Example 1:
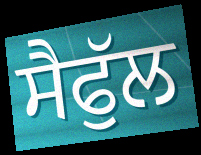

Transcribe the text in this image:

ਸੈਫੁੱਲ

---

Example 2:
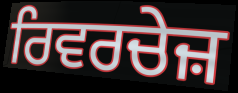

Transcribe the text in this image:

ਰਿਵਰਚੇਜ਼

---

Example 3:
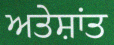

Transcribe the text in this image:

ਅਤੇਸ਼ਾਂਤ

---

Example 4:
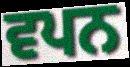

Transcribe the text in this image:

ਵਪਨ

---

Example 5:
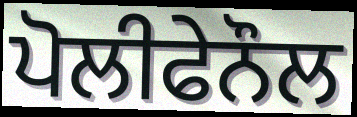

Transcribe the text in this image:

ਪੋਲੀਫੇਨੌਲ